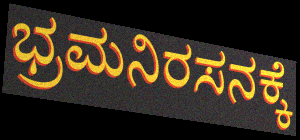
ಭ್ರಮನಿರಸನಕ್ಕೆ